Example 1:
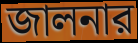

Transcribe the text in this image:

জালনার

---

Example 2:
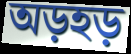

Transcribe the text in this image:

অড়হড়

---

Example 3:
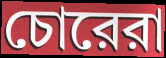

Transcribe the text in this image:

চোরেরা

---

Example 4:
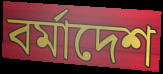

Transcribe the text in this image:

বর্মাদেশ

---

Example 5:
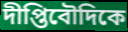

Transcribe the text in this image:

দীপ্তিবৌদিকে